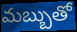
మబ్బుతో